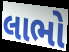
લાભો